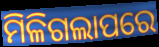
ମିଳିଗଲାପରେ